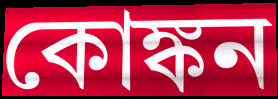
কোঙ্কন